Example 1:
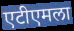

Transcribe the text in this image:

एटीएमला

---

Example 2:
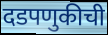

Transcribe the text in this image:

दडपणुकीची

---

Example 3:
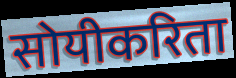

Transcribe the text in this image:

सोयीकरिता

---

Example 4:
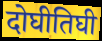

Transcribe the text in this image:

दोघीतिघी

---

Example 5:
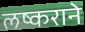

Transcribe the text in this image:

लष्कराने